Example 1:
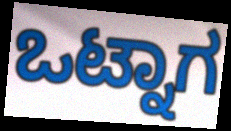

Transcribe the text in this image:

ಒಟ್ನಾಗ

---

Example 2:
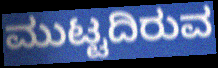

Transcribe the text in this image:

ಮುಟ್ಟದಿರುವ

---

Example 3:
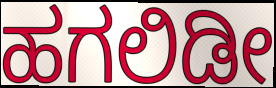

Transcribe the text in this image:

ಹಗಲಿಡೀ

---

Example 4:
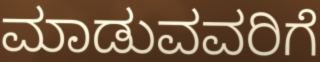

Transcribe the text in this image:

ಮಾಡುವವರಿಗೆ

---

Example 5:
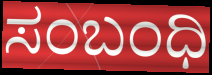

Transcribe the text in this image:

ಸಂಬಂಧಿ